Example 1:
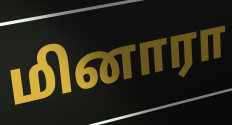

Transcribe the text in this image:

மினாரா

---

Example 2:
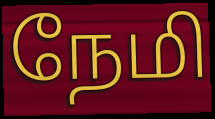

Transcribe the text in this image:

நேமி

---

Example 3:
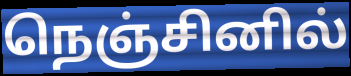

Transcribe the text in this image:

நெஞ்சினில்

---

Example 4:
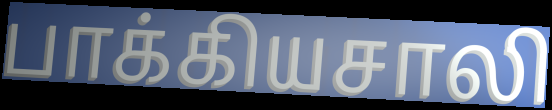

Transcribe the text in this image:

பாக்கியசாலி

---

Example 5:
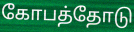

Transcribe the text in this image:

கோபத்தோடு